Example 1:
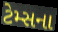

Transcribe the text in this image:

ટેમ્સના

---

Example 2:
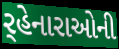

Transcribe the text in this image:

ર્‌હેનારાઓની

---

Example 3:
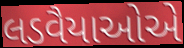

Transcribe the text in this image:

લડવૈયાઓએ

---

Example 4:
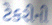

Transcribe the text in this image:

ટેકરીની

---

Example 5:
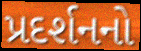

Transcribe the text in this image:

પ્રદર્શનનો